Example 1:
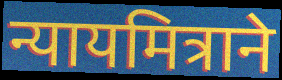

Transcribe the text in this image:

न्यायमित्राने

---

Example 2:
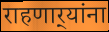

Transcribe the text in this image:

राहणार्यांना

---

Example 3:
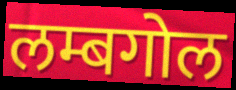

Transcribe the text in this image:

लम्बगोल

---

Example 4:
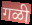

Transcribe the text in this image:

गळी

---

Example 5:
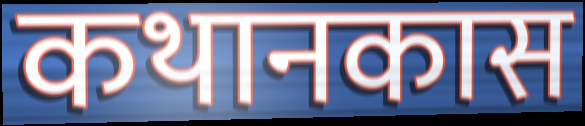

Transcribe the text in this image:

कथानकास